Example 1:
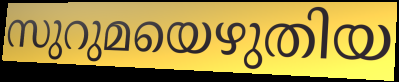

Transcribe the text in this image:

സുറുമയെഴുതിയ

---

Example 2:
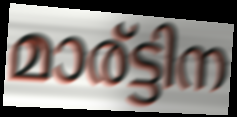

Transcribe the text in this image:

മാര്ട്ടിന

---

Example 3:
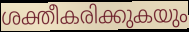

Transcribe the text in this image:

ശക്തീകരിക്കുകയും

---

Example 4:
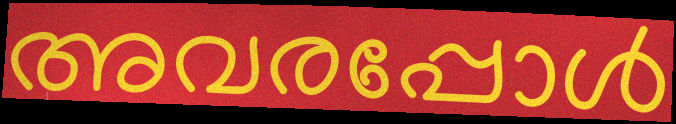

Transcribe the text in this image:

അവരപ്പോൾ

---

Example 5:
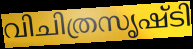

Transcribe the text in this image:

വിചിത്രസൃഷ്ടി